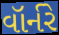
વૉર્નરે